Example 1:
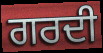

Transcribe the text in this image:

ਗਰਦੀ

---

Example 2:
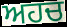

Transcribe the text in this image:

ਅਹਚ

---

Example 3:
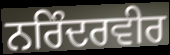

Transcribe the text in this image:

ਨਰਿੰਦਰਵੀਰ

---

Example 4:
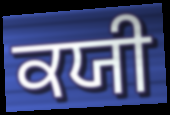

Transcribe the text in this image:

ਕਯੀ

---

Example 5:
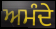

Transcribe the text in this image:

ਅਮੰਦੇ